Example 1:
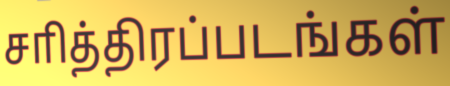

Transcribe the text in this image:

சரித்திரப்படங்கள்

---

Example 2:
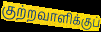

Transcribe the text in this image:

குற்றவாளிக்குப்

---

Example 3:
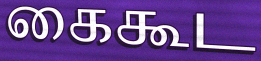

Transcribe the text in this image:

கைகூட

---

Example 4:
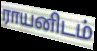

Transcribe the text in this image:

ராயனிடம்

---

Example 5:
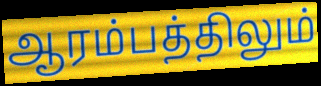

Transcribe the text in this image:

ஆரம்பத்திலும்